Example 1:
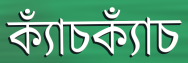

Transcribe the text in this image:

ক্যাঁচক্যাঁচ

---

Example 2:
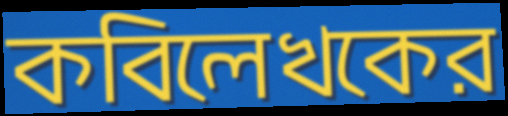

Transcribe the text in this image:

কবিলেখকের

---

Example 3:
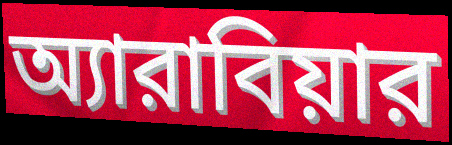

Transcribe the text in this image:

অ্যারাবিয়ার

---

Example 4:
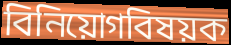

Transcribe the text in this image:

বিনিয়োগবিষয়ক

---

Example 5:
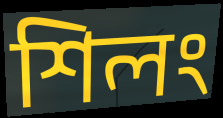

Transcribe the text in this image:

শিলং